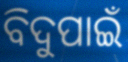
ବିଦୁପାଇଁ